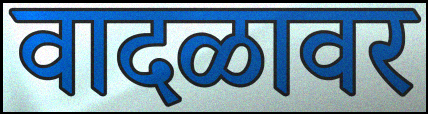
वादळावर